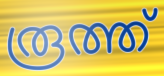
രൂത്ത്